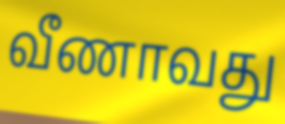
வீணாவது